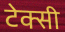
टेक्सी